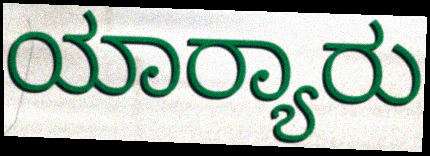
ಯಾರ‍್ಯಾರು